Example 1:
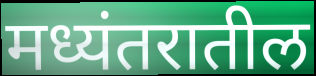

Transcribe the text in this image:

मध्यंतरातील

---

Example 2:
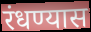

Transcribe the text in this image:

रंधण्यास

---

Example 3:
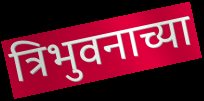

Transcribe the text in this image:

त्रिभुवनाच्या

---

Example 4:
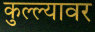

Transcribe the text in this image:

कुल्ल्यावर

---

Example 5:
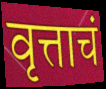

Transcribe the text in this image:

वृत्ताचं